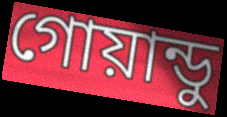
গোয়ান্ডু